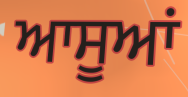
ਆਸੂਆਂ